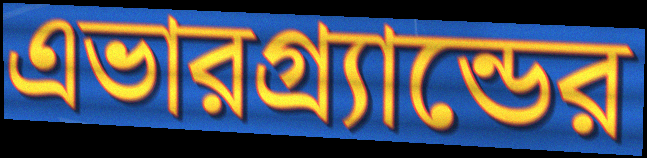
এভারগ্র্যান্ডের